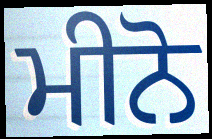
ਮੀਨੋ